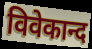
विवेकान्द